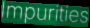
Impurities